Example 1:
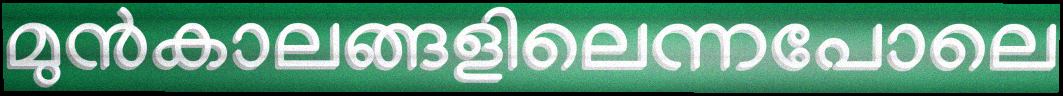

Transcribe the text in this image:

മുൻകാലങ്ങളിലെന്നപോലെ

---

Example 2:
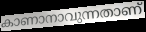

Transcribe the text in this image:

കാണാനാവുന്നതാണ്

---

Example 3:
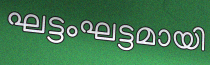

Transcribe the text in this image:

ഘട്ടംഘട്ടമായി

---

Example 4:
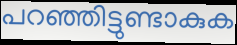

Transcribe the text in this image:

പറഞ്ഞിട്ടുണ്ടാകുക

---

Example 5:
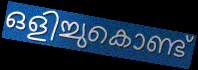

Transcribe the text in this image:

ഒളിച്ചുകൊണ്ട്